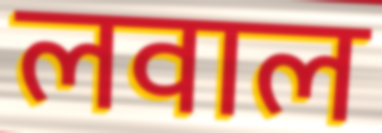
लवाल